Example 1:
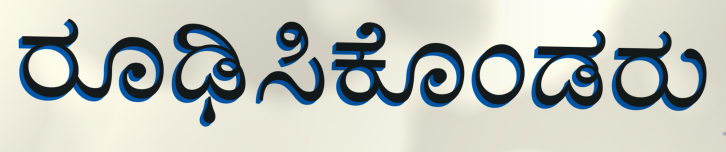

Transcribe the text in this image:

ರೂಢಿಸಿಕೊಂಡರು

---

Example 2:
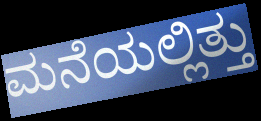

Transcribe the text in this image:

ಮನೆಯಲ್ಲಿತ್ತು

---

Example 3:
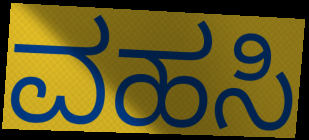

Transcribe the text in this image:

ವಹಸಿ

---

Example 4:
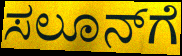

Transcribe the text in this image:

ಸಲೂನ್‍ಗೆ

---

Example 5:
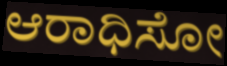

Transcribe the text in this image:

ಆರಾಧಿಸೋ